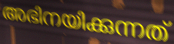
അഭിനയിക്കുന്നത്